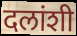
दलांशी